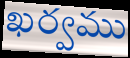
ఖర్వము